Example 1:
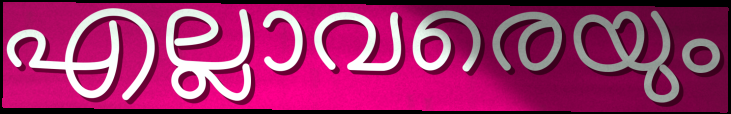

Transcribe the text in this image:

എല്ലാവരെയും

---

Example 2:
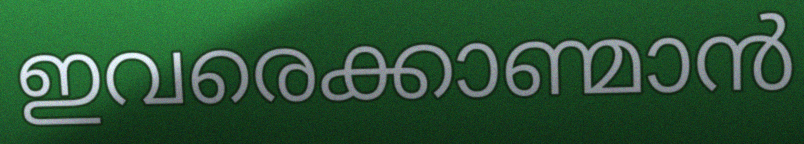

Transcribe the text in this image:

ഇവരെക്കാണ്മാൻ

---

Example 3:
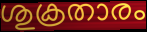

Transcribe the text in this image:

ശുക്രതാരം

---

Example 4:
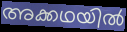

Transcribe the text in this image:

അക്കഥയിൽ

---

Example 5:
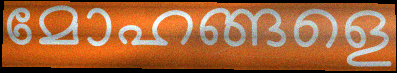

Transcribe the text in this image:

മോഹങ്ങളെ